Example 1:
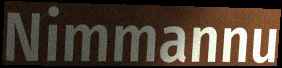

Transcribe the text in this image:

Nimmannu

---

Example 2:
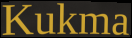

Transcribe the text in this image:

Kukma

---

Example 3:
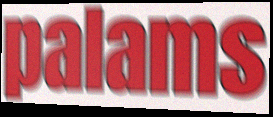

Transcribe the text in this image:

palams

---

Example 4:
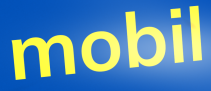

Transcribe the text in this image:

mobil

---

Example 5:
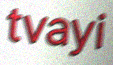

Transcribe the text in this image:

tvayi